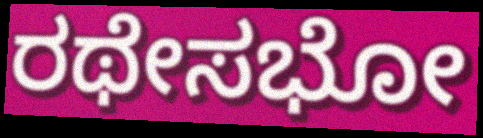
ರಥೇಸಭೋ